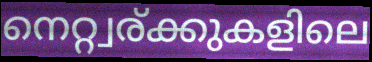
നെറ്റ്വര്ക്കുകളിലെ